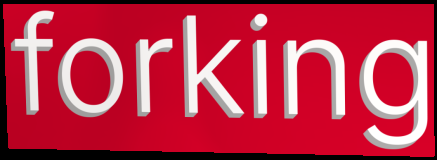
forking